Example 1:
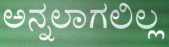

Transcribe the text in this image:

ಅನ್ನಲಾಗಲಿಲ್ಲ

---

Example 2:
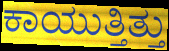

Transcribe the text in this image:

ಕಾಯುತ್ತಿತ್ತು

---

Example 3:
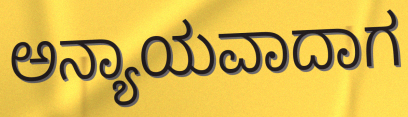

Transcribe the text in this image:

ಅನ್ಯಾಯವಾದಾಗ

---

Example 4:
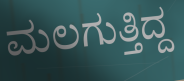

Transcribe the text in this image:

ಮಲಗುತ್ತಿದ್ದ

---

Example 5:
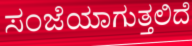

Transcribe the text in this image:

ಸಂಜೆಯಾಗುತ್ತಲಿದೆ